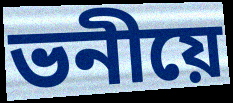
ভনীয়ে